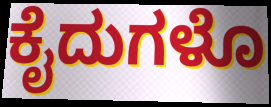
ಕೈದುಗಳೊ